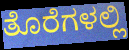
ತೊರೆಗಳಲ್ಲಿ